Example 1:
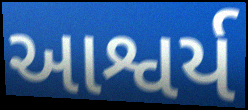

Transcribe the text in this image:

આશ્વર્ય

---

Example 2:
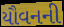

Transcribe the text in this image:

યૌવનની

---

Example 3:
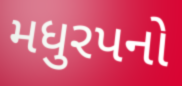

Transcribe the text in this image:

મધુરપનો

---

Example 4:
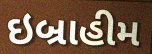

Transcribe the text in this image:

ઇબ્રાહીમ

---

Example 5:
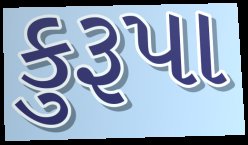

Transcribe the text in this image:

કુરૂપા